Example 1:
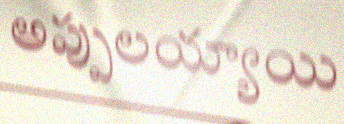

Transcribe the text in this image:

అప్పులయ్యాయి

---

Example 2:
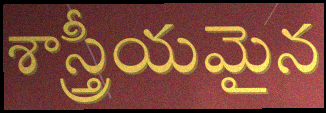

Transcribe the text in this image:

శాస్త్రీయమైన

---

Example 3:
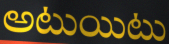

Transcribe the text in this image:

అటుయిటు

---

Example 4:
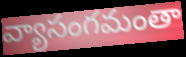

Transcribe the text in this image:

వ్యాసంగమంతా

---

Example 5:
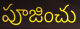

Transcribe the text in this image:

పూజించు